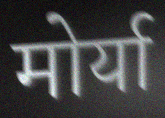
मोर्या